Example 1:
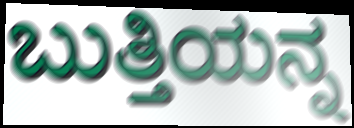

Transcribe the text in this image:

ಬುತ್ತಿಯನ್ನ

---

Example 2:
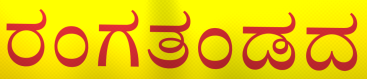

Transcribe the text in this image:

ರಂಗತಂಡದ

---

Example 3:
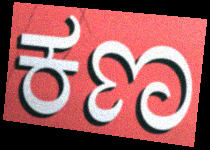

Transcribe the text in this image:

ಕಣ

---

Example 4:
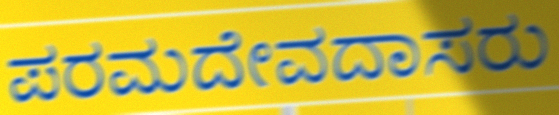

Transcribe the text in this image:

ಪರಮದೇವದಾಸರು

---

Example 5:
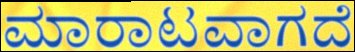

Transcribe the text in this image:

ಮಾರಾಟವಾಗದೆ